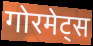
गोरमेट्स